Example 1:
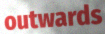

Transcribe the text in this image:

outwards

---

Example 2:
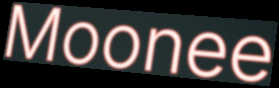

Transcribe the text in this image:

Moonee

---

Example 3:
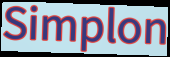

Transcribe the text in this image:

Simplon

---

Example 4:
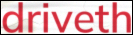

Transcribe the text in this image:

driveth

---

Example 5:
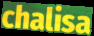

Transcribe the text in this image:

chalisa